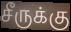
சீருக்கு